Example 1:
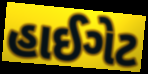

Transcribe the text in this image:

હાઈગેટ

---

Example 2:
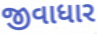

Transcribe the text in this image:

જીવાધાર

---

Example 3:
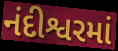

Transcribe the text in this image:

નંદીશ્વરમાં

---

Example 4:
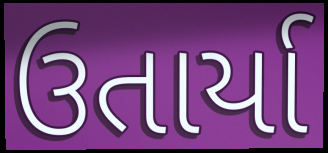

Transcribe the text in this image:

ઉતાર્યા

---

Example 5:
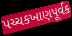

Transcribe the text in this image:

પચ્ચકખાણપૂર્વક